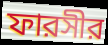
ফারসীর